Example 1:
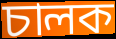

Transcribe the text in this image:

চালক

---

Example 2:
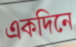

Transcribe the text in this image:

একদিনে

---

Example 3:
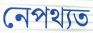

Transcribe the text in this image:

নেপথ্যত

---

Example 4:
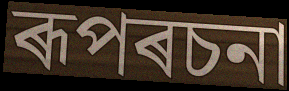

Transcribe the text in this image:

ৰূপৰচনা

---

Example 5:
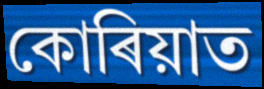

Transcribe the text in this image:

কোৰিয়াত